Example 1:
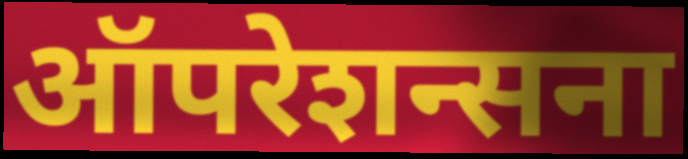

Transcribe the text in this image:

ऑपरेशन्सना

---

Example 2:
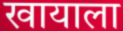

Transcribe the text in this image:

खायाला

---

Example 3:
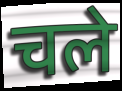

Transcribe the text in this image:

चले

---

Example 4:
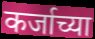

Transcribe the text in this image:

कर्जाच्या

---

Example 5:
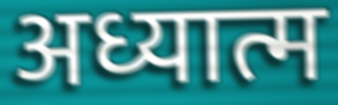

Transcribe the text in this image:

अध्यात्म